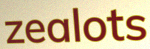
zealots